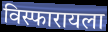
विस्फारायला